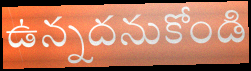
ఉన్నదనుకోండి